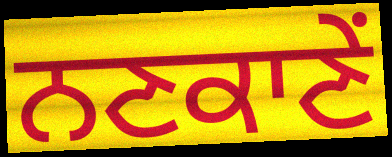
ਨਣਕਾਣੇਂ